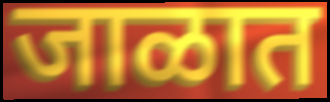
जाळात